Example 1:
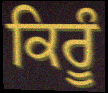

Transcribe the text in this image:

ਕਿਰੂੰ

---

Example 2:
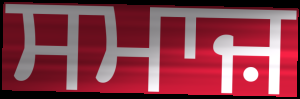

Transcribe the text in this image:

ਸਮਾਜ਼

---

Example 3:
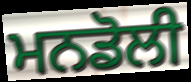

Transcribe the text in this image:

ਮਨਡੋਲੀ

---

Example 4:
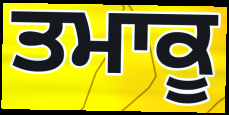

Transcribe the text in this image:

ਤਮਾਕੂ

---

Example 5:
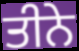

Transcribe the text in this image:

ਤੀਨੇ